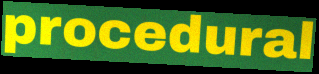
procedural